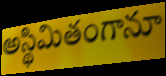
అస్థిమితంగానూ